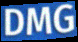
DMG